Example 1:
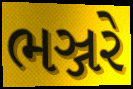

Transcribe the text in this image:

ભઞ્જરે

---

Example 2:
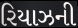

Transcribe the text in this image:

રિયાઝની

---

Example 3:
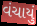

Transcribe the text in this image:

વંચાયું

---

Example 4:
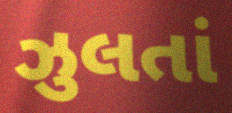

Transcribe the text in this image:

ઝુલતાં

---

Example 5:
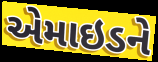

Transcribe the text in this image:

એમાઇડને